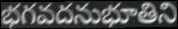
భగవదనుభూతిని